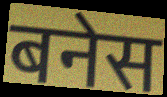
बनेस